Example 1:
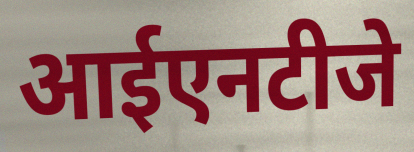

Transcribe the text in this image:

आईएनटीजे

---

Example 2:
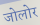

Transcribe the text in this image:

जोलोर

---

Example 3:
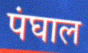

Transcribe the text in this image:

पंघाल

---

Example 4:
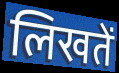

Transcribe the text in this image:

लिखतें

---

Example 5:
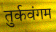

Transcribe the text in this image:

तुर्कवंगम